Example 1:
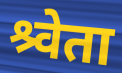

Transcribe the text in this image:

श्र्वेता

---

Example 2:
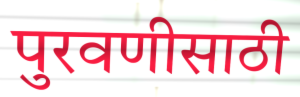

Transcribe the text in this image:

पुरवणीसाठी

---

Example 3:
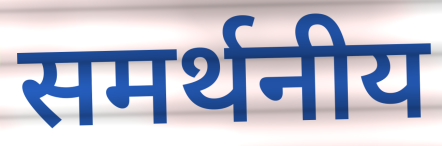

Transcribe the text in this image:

समर्थनीय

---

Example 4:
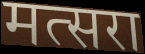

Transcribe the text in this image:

मत्सरा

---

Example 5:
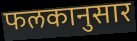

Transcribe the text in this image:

फलकानुसार